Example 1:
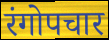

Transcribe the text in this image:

रंगोपचार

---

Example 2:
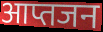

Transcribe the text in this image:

आप्तजन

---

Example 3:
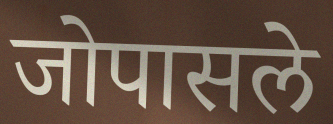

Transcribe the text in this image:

जोपासले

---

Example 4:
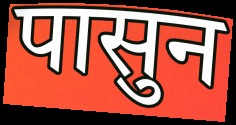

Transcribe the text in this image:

पासुन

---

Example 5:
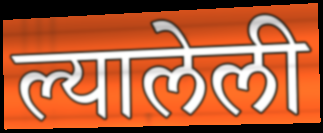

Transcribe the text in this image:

ल्यालेली